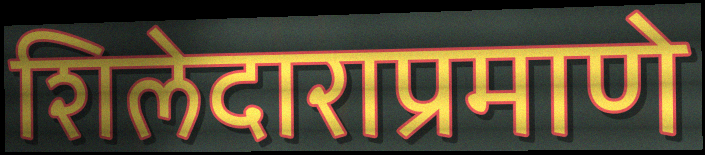
शिलेदाराप्रमाणे